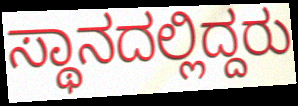
ಸ್ಥಾನದಲ್ಲಿದ್ದರು